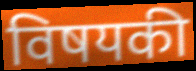
विषयकी